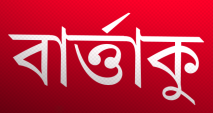
বার্ত্তাকু